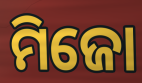
ମିଜୋ